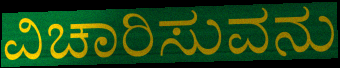
ವಿಚಾರಿಸುವನು